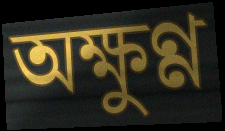
অক্ষুণ্ণ